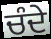
ਚੰਦੇ